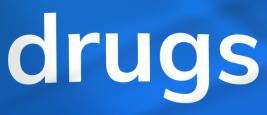
drugs